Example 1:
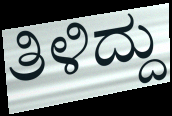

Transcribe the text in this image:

ತಿಳಿದ್ದು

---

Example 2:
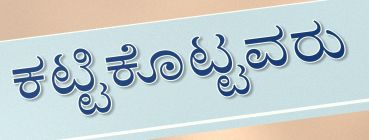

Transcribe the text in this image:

ಕಟ್ಟಿಕೊಟ್ಟವರು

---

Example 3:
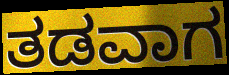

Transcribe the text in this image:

ತಡವಾಗ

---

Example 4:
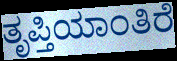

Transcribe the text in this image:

ತೃಪ್ತಿಯಾಂತಿರೆ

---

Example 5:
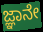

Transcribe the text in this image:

ಜ್ಞಾನೇ